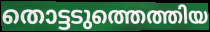
തൊട്ടടുത്തെത്തിയ